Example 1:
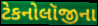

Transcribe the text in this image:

ટેકનોલૉજીના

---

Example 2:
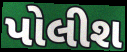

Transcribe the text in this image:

પોલીશ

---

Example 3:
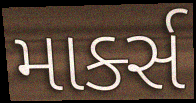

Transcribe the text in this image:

માર્ક્સ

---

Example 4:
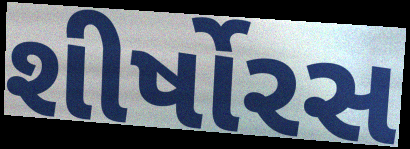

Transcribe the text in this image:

શીર્ષોરસ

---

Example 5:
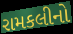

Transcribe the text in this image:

રામકલીનો